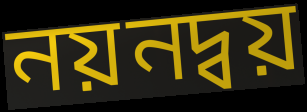
নয়নদ্বয়